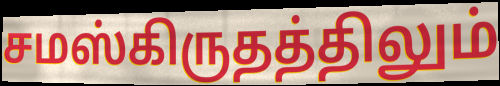
சமஸ்கிருதத்திலும்